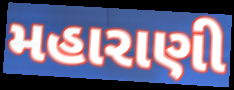
મહારાણી